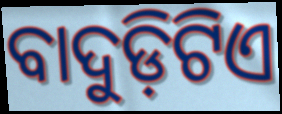
ବାଦୁଡ଼ିଟିଏ